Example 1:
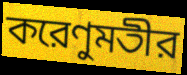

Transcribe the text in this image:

করেণুমতীর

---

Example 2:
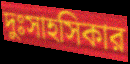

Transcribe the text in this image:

দুঃসাহসিকার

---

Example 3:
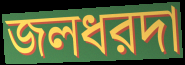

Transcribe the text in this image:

জলধরদা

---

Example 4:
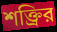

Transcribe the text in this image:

শক্ত্রির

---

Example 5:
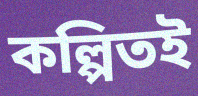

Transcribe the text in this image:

কল্পিতই